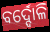
ବର୍ଦ୍ଦୋଳି